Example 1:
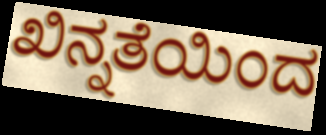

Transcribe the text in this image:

ಖಿನ್ನತೆಯಿಂದ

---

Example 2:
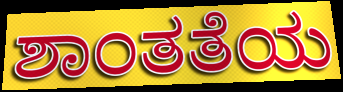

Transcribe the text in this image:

ಶಾಂತತೆಯ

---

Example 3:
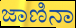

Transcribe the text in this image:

ಜಾಣಿನಾ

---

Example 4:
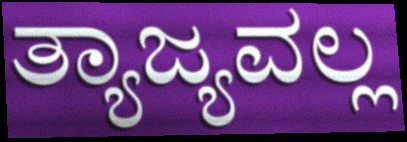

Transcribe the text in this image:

ತ್ಯಾಜ್ಯವಲ್ಲ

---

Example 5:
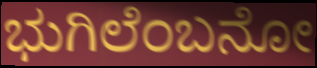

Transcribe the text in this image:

ಭುಗಿಲೆಂಬನೋ